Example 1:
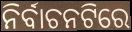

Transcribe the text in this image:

ନିର୍ବାଚନଟିରେ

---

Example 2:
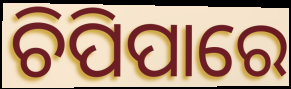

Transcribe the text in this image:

ଚିପିପାରେ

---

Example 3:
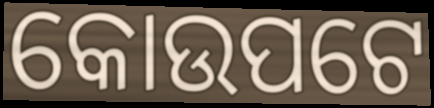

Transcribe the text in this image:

କୋଉପଟେ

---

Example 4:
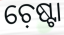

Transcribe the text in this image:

ଚ଼େଷ୍ଟା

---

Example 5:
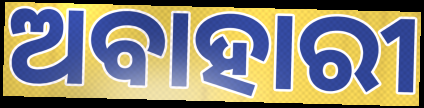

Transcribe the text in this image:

ଅବାହାରୀ